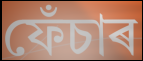
ফেঁচাৰ